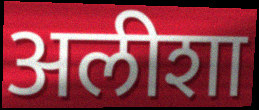
अलीशा